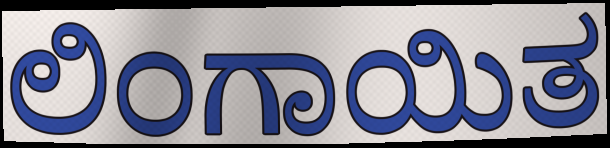
ಲಿಂಗಾಯಿತ